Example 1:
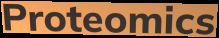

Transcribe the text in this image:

Proteomics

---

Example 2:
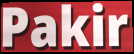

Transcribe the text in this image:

Pakir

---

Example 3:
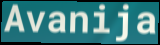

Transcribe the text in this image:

Avanija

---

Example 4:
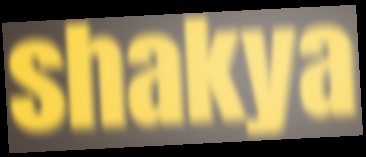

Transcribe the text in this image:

shakya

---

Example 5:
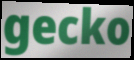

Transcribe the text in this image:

gecko